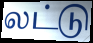
லட்டு